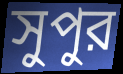
সুপুর